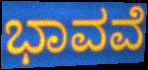
ಭಾವವೆ